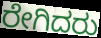
ರೇಗಿದರು